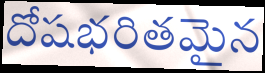
దోషభరితమైన